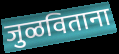
जुळविताना